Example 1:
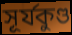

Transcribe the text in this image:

সূর্যকুণ্ড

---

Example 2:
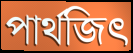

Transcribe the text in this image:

পার্থজিৎ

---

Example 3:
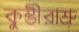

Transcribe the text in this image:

কুম্ভীরাশ্রু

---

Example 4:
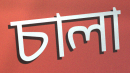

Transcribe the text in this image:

চালা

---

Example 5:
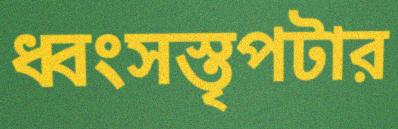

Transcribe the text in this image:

ধ্বংসস্তৃপটার